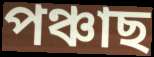
পঞ্চাছ